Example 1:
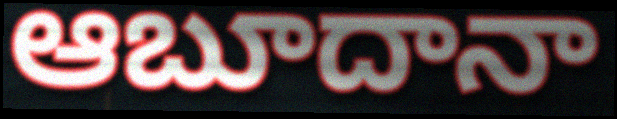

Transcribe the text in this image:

ఆబూదానా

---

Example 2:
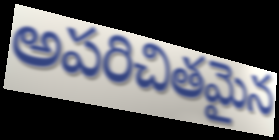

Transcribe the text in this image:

అపరిచితమైన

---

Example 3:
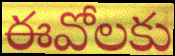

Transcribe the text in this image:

ఈవోలకు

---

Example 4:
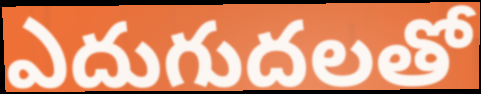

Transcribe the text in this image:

ఎదుగుదలతో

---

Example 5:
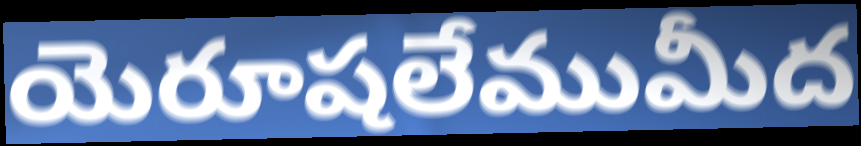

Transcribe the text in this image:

యెరూషలేముమీద